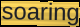
soaring